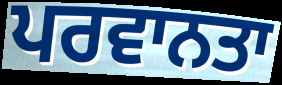
ਪਰਵਾਨਤਾ